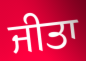
ਜੀਤਾ